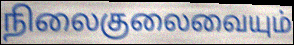
நிலைகுலைவையும்